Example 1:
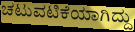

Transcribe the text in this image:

ಚಟುವಟಿಕೆಯಾಗಿದ್ದು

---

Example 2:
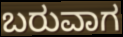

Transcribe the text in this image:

ಬರುವಾಗ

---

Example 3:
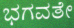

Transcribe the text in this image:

ಭಗವತೇ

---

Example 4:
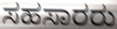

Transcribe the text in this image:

ಸಹಸಾರರು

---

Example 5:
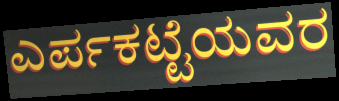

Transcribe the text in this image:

ಎರ್ಪಕಟ್ಟೆಯವರ